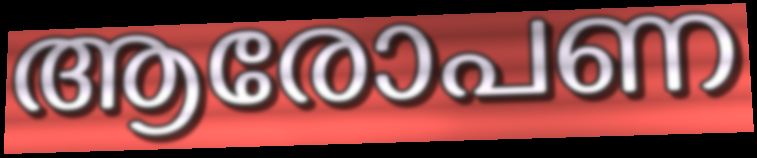
ആരോപണ